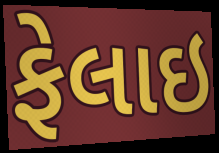
ફેલાઇ